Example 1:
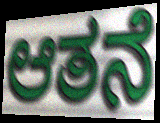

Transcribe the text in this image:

ಆತನೆ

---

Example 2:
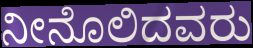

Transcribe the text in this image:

ನೀನೊಲಿದವರು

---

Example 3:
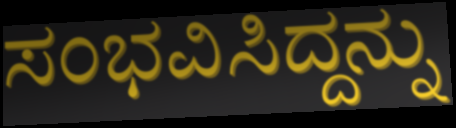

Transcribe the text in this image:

ಸಂಭವಿಸಿದ್ದನ್ನು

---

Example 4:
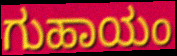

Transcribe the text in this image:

ಗುಹಾಯಂ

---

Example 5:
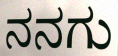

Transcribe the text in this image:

ನನಗು